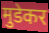
मुडेकर